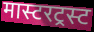
मास्टरट्रस्ट